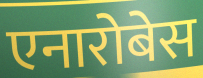
एनारोबेस